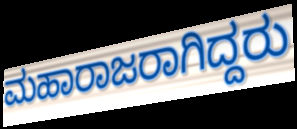
ಮಹಾರಾಜರಾಗಿದ್ದರು